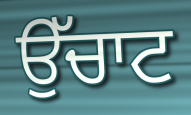
ਉੱਚਾਟ